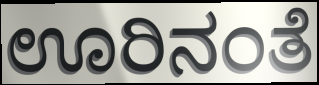
ಊರಿನಂತೆ